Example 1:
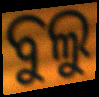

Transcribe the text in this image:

ବୁଲୁ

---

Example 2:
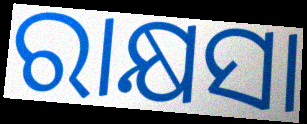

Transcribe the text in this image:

ରାକ୍ଷସା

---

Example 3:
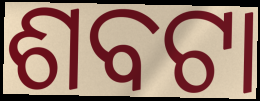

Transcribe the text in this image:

ଶବଟା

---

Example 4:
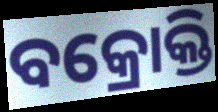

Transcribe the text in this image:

ବକ୍ରୋକ୍ତି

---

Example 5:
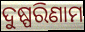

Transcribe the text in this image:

ଦୁଷ୍ପରିଣାମ